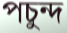
পচুন্দ